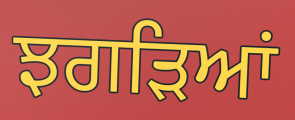
ਝਗੜਿਆਂ